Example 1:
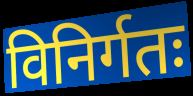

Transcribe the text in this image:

विनिर्गतः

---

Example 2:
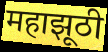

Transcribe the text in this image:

महाझूठी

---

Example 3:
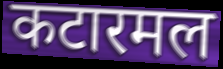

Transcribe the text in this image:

कटारमल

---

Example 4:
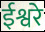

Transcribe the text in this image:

ईश्वरे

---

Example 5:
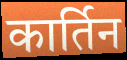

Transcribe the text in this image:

कार्तिन